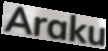
Araku